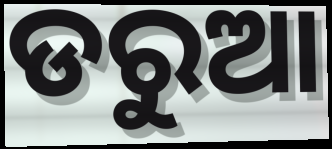
ଡରୁଆ